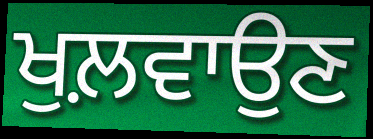
ਖੁਲ਼ਵਾਉਣ